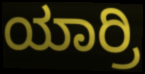
ಯಾರ್ರಿ